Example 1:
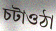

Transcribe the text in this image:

চটাওঠা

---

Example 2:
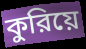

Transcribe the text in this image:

কুরিয়ে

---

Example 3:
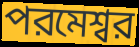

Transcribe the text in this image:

পরমেশ্বর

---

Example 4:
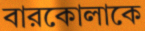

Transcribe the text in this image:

বারকোলাকে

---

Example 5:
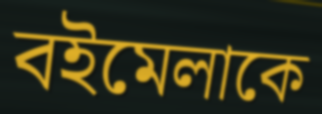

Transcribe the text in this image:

বইমেলাকে